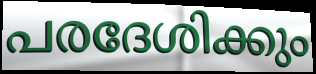
പരദേശിക്കും